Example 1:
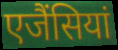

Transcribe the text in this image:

एजैंसियां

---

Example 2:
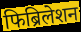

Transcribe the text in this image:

फिब्रिलेशन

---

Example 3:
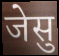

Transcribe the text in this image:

जेसु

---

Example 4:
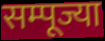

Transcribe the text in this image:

सम्पूज्या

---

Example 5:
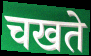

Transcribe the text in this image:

चखते